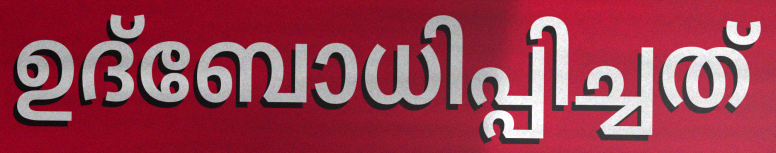
ഉദ്ബോധിപ്പിച്ചത്